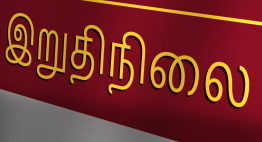
இறுதிநிலை